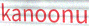
kanoonu